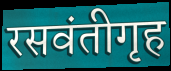
रसवंतीगृह